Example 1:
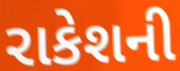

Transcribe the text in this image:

રાકેશની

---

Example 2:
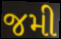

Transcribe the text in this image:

જમી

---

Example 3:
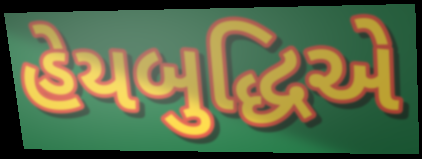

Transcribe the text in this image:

હેયબુદ્ધિએ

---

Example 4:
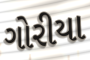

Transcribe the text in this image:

ગોરીયા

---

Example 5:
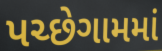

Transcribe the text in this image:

પચ્છેગામમાં